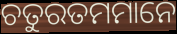
ଚତୁରତମମାନେ